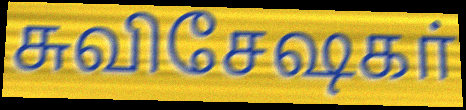
சுவிசேஷகர்